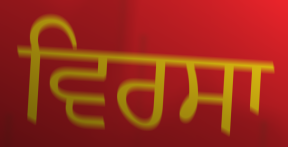
ਵਿਰਸਾ